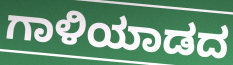
ಗಾಳಿಯಾಡದ